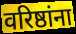
वरिष्ठांना